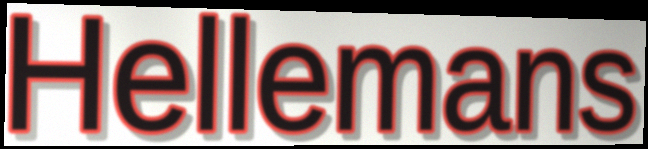
Hellemans